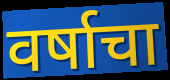
वर्षाचा